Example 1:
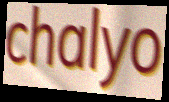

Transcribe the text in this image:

chalyo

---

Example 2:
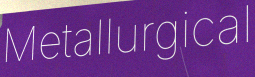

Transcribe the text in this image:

Metallurgical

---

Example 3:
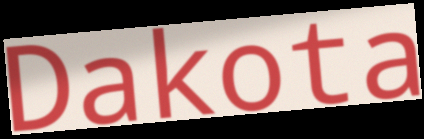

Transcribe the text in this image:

Dakota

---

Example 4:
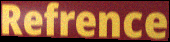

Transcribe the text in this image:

Refrence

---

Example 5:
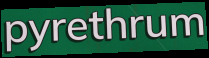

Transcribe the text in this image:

pyrethrum